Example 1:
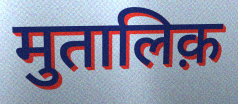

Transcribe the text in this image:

मुतालिक़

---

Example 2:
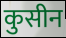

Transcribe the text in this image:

कुसीन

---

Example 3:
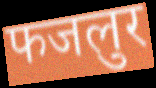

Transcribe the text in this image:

फजलुर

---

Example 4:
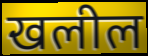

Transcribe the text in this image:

खलील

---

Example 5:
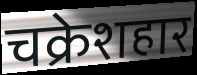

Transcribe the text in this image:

चक्रेशहार